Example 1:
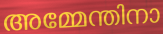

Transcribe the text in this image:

അമ്മേന്തിനാ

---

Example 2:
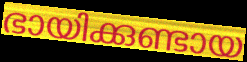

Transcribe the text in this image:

ഭായിക്കുണ്ടായ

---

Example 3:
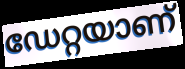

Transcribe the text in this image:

ഡേറ്റയാണ്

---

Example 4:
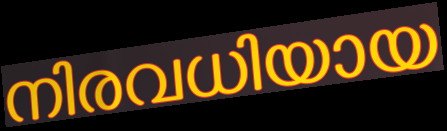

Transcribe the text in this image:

നിരവധിയായ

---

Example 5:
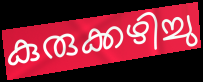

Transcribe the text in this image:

കുരുക്കഴിച്ചു